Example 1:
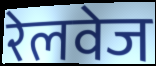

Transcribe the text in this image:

रेलवेज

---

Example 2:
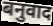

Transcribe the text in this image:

बनुवाद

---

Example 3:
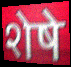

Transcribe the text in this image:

शेषे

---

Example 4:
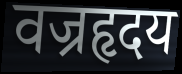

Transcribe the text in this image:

वज्रहृदय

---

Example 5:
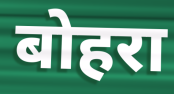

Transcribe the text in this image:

बोहरा